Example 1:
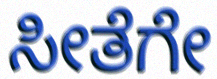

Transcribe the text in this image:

ಸೀತೆಗೇ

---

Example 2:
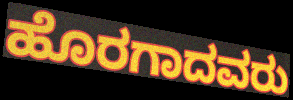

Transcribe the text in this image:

ಹೊರಗಾದವರು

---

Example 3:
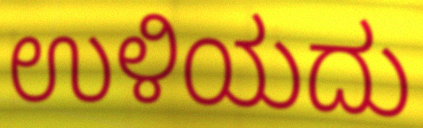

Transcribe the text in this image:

ಉಳಿಯದು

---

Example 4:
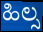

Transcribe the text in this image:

ಹಿಲ್ಸ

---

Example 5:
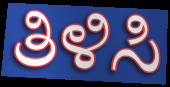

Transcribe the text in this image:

ತಿಳಿಸಿ